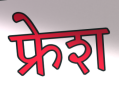
फ्रेश